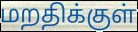
மறதிக்குள்